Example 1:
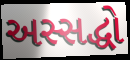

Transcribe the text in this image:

અસ્સદ્ધો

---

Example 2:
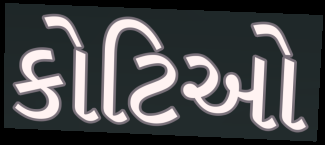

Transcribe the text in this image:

કોટિઓ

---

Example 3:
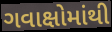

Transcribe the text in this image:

ગવાક્ષોમાંથી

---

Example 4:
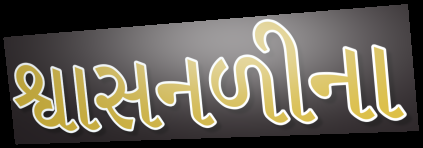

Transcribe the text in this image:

શ્વાસનળીના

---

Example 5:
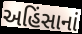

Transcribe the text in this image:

અહિંસાનાં